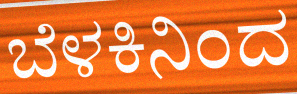
ಬೆಳಕಿನಿಂದ